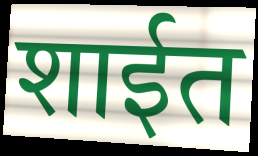
शाईत